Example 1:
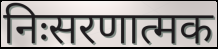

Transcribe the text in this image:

निःसरणात्मक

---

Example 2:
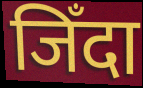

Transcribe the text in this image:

जिँदा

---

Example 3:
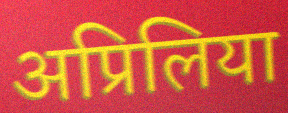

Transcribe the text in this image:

अप्रिलिया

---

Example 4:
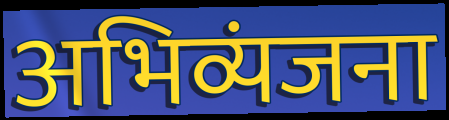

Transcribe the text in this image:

अभिव्यंजना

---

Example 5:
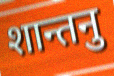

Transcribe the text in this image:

शान्तनु